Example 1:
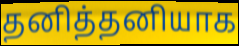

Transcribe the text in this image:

தனித்தனியாக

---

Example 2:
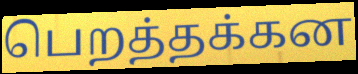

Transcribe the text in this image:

பெறத்தக்கன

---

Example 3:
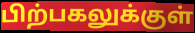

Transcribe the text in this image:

பிற்பகலுக்குள்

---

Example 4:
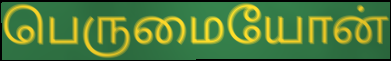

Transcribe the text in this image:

பெருமையோன்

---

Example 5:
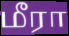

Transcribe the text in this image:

மீரா